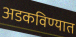
अडकविण्यात